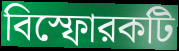
বিস্ফোরকটি